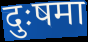
दुःषमा